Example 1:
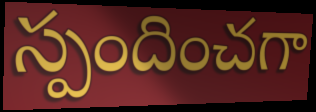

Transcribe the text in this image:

స్పందించగా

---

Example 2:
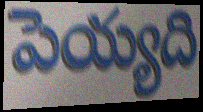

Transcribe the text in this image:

పెయ్యది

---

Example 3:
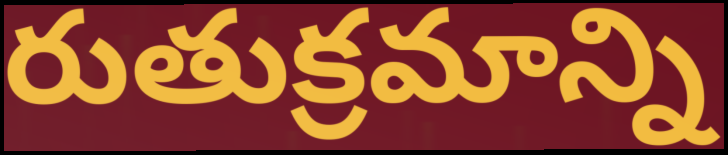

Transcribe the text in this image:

రుతుక్రమాన్ని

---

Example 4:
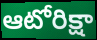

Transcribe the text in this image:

ఆటోరిక్షా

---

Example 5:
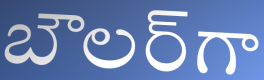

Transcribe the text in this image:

బౌలర్‌గా